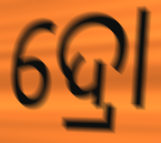
ଦ୍ରୋ